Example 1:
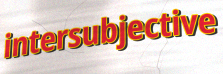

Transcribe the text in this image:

intersubjective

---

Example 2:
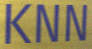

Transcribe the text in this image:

KNN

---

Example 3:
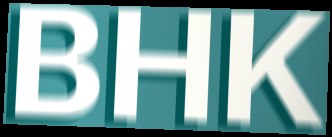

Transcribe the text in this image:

BHK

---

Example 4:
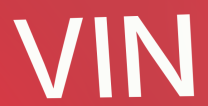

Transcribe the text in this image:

VIN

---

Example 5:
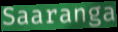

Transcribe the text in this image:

Saaranga